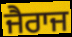
ਜੈਰਾਜ